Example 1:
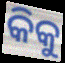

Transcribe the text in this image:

କିକୁ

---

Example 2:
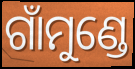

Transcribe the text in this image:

ଗାଁମୁଣ୍ଡେ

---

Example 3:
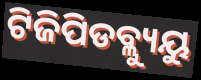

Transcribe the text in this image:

ଟିଜିପିଡବ୍ଲ୍ୟୁୟୁ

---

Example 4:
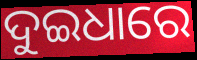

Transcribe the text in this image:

ଦୁଇଧାରେ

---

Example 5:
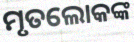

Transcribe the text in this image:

ମୃତଲୋକଙ୍କ